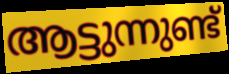
ആട്ടുന്നുണ്ട്